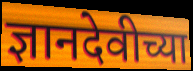
ज्ञानदेवीच्या